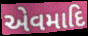
એવમાદિ